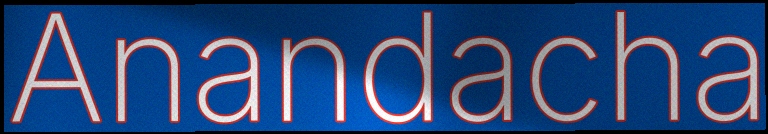
Anandacha